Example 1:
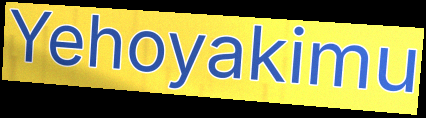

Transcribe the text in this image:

Yehoyakimu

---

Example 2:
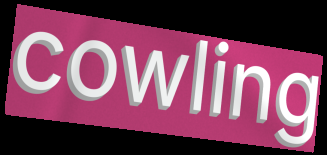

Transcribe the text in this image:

cowling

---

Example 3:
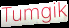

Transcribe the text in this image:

Tumgik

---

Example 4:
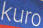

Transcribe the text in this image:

kuro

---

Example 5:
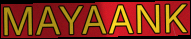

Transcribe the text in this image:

MAYAANK